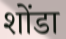
शोंडा